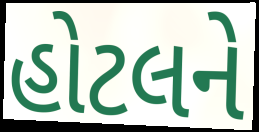
હોટલને